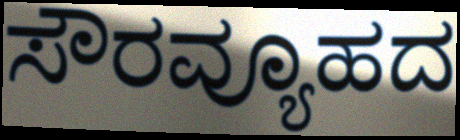
ಸೌರವ್ಯೂಹದ